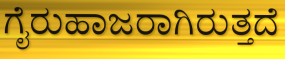
ಗೈರುಹಾಜರಾಗಿರುತ್ತದೆ